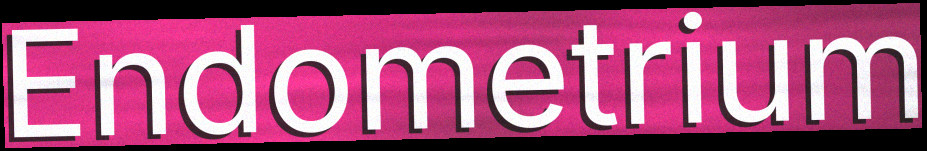
Endometrium